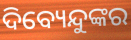
ଦିବ୍ୟେନ୍ଦୁଙ୍କର